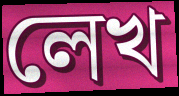
লেখ